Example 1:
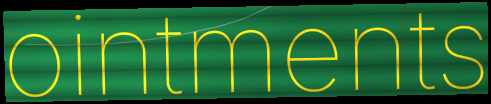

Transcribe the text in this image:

ointments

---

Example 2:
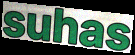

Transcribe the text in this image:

suhas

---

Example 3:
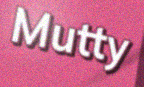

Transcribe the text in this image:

Mutty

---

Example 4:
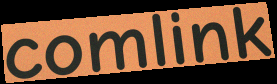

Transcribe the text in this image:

comlink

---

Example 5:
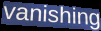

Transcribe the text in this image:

vanishing